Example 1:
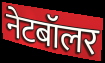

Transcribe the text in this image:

नेटबॉलर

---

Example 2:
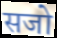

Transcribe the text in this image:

सजो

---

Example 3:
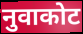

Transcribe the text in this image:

नुवाकोट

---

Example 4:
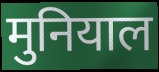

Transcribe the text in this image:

मुनियाल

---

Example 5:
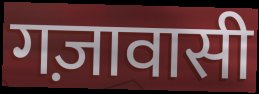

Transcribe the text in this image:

गज़ावासी